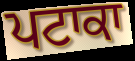
ਪਟਾਕਾ